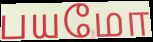
பயமோ